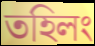
তহিলং